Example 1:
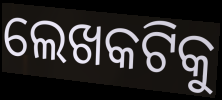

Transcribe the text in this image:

ଲେଖକଟିକୁ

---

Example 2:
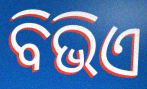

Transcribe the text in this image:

ବିଭିଏ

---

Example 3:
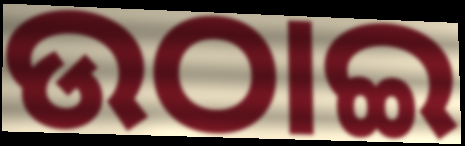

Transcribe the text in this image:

ଉଠାଇ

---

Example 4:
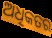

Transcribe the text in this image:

ଅଧିକତର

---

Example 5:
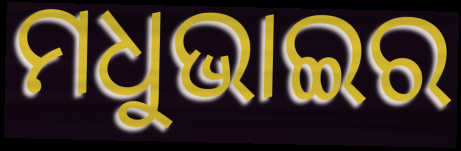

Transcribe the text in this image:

ମଧୁଭାଇର